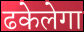
ढकेलेगा